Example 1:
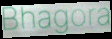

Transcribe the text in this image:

Bhagora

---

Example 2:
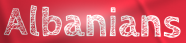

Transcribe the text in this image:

Albanians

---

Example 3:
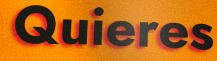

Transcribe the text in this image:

Quieres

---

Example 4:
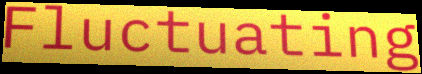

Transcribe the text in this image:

Fluctuating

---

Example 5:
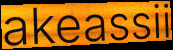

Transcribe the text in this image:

akeassii